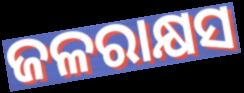
ଜଳରାକ୍ଷସ